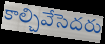
కాల్చివేసెదరు